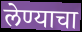
लेण्याचा